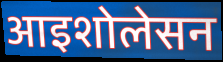
आइशोलेसन